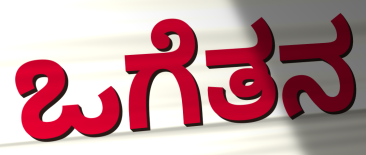
ಒಗೆತನ